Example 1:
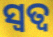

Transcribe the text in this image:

ସ୍ୱତ୍ୱ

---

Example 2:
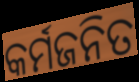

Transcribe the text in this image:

କର୍ମଜନିତ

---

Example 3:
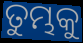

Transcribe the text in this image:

ତୁମ୍ଭକୁ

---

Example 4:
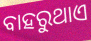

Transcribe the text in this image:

ବାହରୁଥାଏ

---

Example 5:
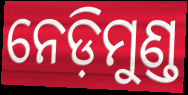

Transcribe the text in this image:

ନେଡ଼ିମୁଣ୍ଡ